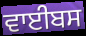
ਵਾਈਬਸ